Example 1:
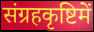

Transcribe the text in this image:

संग्रहकृष्टिमें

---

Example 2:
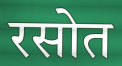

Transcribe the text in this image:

रसोत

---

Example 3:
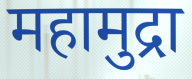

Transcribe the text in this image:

महामुद्रा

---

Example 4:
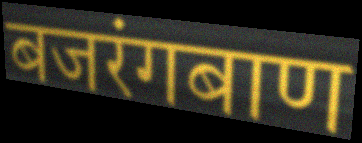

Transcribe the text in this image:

बजरंगबाण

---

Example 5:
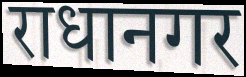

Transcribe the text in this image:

राधानगर